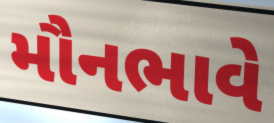
મૌનભાવે